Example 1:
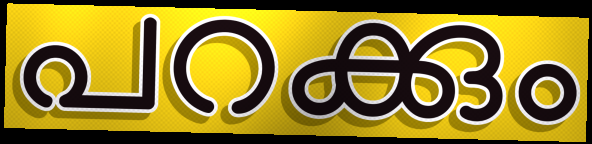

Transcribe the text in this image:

പറക്കും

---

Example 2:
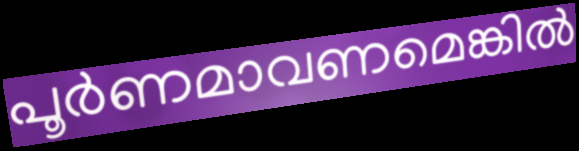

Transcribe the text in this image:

പൂർണമാവണമെങ്കിൽ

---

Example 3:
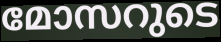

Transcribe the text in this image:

മോസറുടെ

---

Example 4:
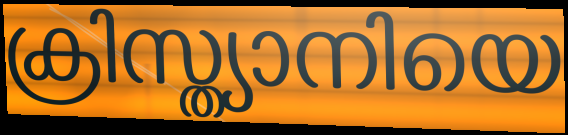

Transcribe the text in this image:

ക്രിസ്ത്യാനിയെ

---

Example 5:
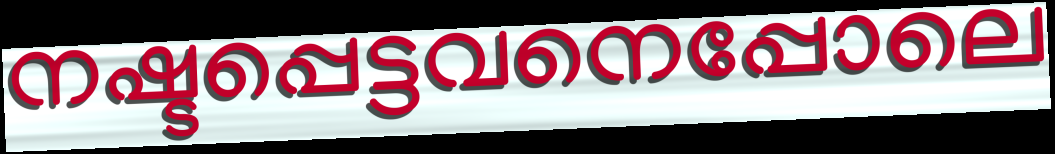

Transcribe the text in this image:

നഷ്ടപ്പെട്ടവനെപ്പോലെ